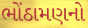
ભોંઠામણનો